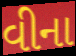
વીના